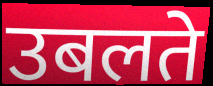
उबलते